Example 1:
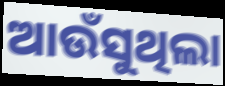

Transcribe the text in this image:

ଆଉଁସୁଥିଲା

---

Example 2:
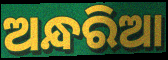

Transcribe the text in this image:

ଅନ୍ଧରିଆ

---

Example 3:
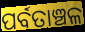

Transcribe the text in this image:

ପର୍ବତାଞ୍ଚଳ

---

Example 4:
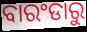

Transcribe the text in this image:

ବାରଂଡାରୁ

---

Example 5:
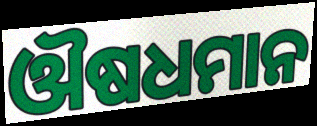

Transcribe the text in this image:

ଔଷଧମାନ